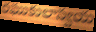
రఘుకులాన్వయ